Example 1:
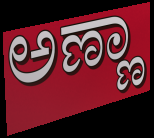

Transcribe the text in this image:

ಅಣ್ಣಾ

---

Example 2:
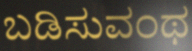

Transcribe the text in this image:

ಬಡಿಸುವಂಥ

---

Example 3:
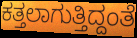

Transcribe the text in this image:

ಕತ್ತಲಾಗುತ್ತಿದ್ದಂತೆ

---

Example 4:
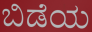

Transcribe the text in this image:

ಬಿಡೆಯ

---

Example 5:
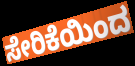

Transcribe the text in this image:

ಸೇರಿಕೆಯಿಂದ